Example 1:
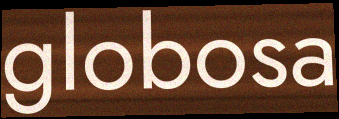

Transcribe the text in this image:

globosa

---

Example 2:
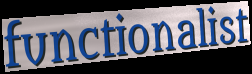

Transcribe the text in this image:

functionalist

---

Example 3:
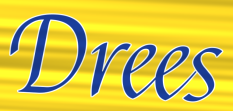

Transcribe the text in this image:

Drees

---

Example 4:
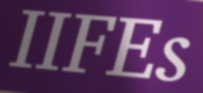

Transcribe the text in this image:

IIFEs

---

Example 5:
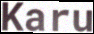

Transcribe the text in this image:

Karu